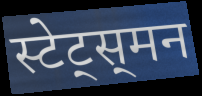
स्टेट्स्‌मन